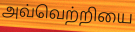
அவ்வெற்றியை